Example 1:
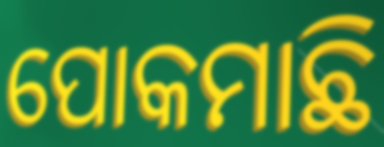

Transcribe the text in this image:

ପୋକମାଛି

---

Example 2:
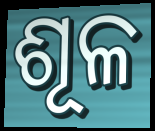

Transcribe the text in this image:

ଶୂଳ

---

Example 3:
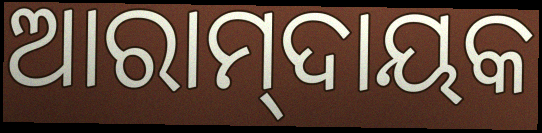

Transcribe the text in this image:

ଆରାମ୍‌ଦାୟକ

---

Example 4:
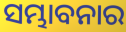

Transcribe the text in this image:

ସମ୍ଭାବନାର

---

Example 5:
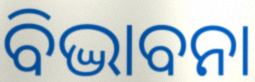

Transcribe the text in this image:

ବିଦ୍ଭାବନା